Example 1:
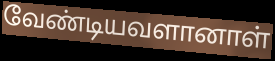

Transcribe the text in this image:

வேண்டியவளானாள்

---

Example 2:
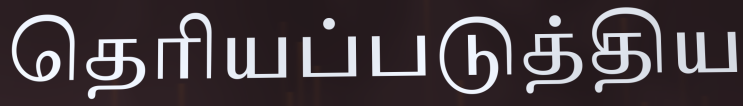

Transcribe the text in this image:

தெரியப்படுத்திய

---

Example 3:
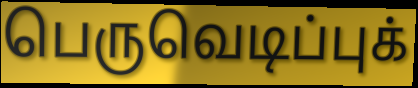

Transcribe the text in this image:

பெருவெடிப்புக்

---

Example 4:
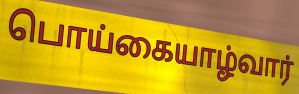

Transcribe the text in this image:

பொய்கையாழ்வார்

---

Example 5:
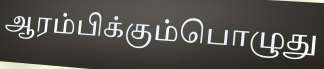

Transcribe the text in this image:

ஆரம்பிக்கும்பொழுது